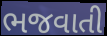
ભજવાતી